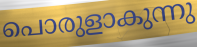
പൊരുളാകുന്നു